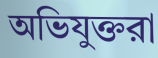
অভিযুক্তরা